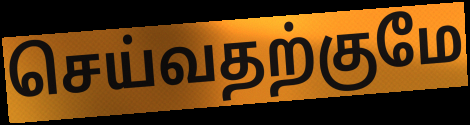
செய்வதற்குமே